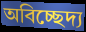
অবিচ্ছেদ্য